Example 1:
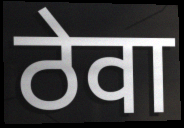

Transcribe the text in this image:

ठेवा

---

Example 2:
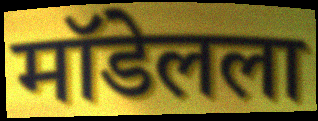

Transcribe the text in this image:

मॉडेलला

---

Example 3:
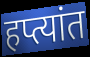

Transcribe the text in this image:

हप्त्यांत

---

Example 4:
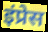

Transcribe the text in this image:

इंप्रेस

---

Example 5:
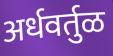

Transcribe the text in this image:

अर्धवर्तुळ